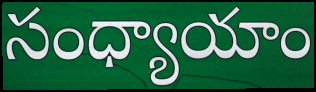
సంధ్యాయాం